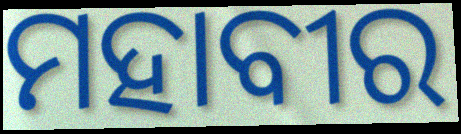
ମହାବୀର